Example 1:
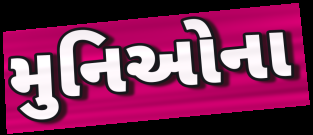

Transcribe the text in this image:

મુનિઓના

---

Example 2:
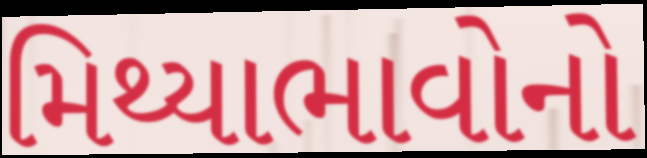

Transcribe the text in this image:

મિથ્યાભાવોનો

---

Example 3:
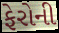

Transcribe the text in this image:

ફેરોની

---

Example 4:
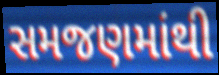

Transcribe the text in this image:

સમજણમાંથી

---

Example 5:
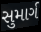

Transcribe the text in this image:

સુમાર્ગ